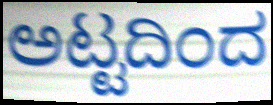
ಅಟ್ಟದಿಂದ